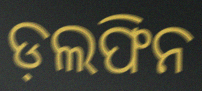
ଡ଼ଲଫିନ